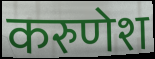
करुणेश